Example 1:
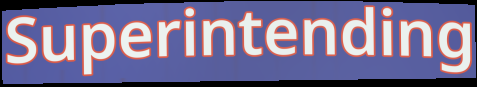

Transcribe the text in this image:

Superintending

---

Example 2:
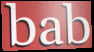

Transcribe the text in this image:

bab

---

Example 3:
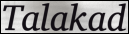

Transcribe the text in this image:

Talakad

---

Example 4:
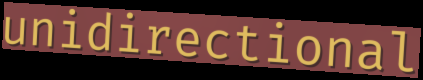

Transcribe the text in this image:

unidirectional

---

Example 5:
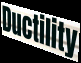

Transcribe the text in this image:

Ductility